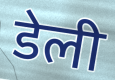
डेली